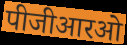
पीजीआरओ